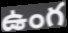
ఉంగ